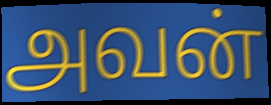
அவன்